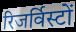
रिजर्विस्टों